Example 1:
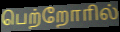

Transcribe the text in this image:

பெற்றோரில்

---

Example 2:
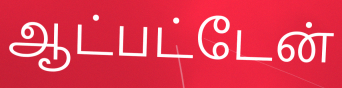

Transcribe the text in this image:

ஆட்பட்டேன்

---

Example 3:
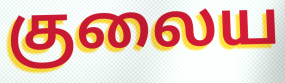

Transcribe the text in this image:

குலைய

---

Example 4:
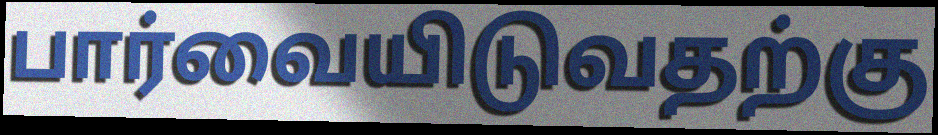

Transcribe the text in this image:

பார்வையிடுவதற்கு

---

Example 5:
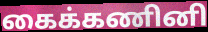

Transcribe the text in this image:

கைக்கணினி